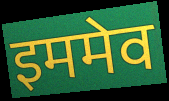
इममेव